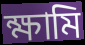
ক্ষামি